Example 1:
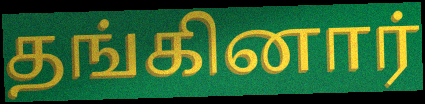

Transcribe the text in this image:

தங்கினார்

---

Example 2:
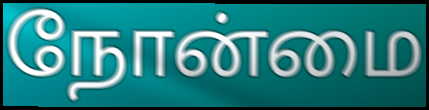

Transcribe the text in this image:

நோன்மை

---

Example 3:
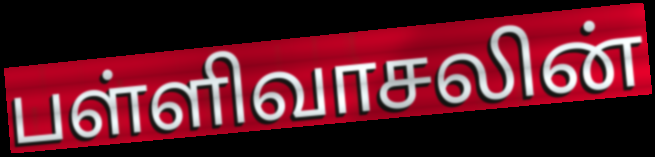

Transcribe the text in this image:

பள்ளிவாசலின்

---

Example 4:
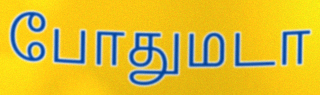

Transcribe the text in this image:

போதுமடா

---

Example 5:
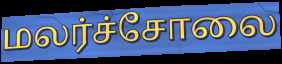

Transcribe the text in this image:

மலர்ச்சோலை